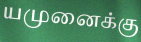
யமுனைக்கு